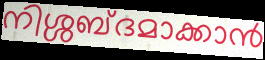
നിശ്ശബ്ദമാക്കാൻ